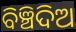
ବିଞ୍ଚିଦିଅ